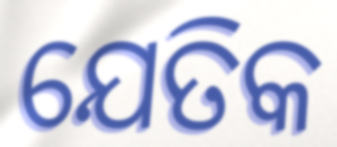
ଯେତିକ